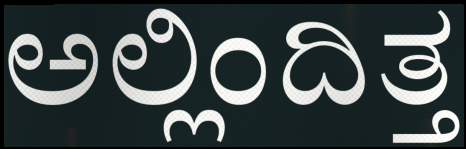
ಅಲ್ಲಿಂದಿತ್ತ